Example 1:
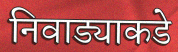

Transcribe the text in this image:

निवाड्याकडे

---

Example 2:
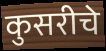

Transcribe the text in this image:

कुसरीचे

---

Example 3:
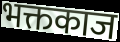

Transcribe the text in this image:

भक्तकाज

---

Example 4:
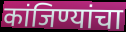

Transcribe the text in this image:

कांजिण्यांचा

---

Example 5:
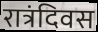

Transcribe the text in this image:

रात्रंदिवस